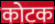
कोटक